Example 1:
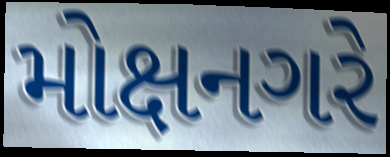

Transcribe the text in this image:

મોક્ષનગરે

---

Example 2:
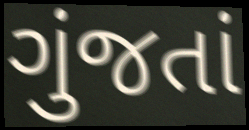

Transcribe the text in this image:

ગુંજતાં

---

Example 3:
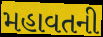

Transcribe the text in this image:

મહાવતની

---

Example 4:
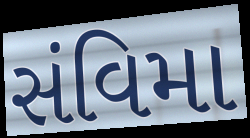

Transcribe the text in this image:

સંવિમા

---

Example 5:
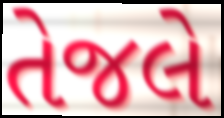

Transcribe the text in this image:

તેજલે